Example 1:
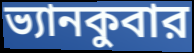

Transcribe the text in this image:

ভ্যানকুবার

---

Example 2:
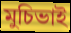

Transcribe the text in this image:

মুচিভাই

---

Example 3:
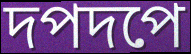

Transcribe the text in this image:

দপদপে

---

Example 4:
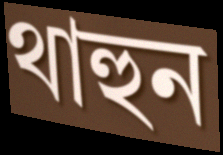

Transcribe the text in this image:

থাহুন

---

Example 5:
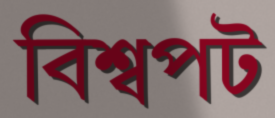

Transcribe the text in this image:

বিশ্বপট